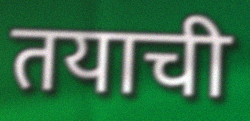
तयाची